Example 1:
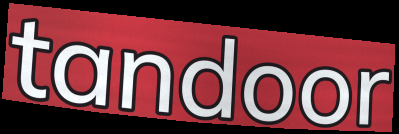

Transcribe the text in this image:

tandoor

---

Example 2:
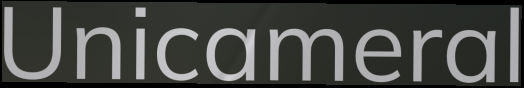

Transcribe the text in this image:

Unicameral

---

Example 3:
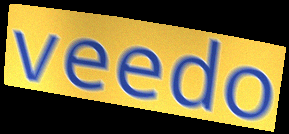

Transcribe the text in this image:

veedo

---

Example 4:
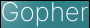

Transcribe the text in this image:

Gopher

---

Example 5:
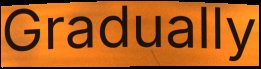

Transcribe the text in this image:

Gradually